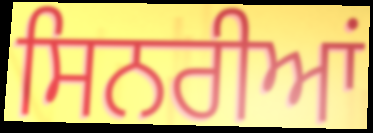
ਸਿਨਰੀਆਂ